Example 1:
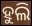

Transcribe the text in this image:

ହୁଲି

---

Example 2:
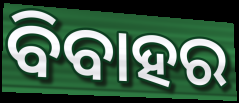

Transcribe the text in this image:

ବିବାହର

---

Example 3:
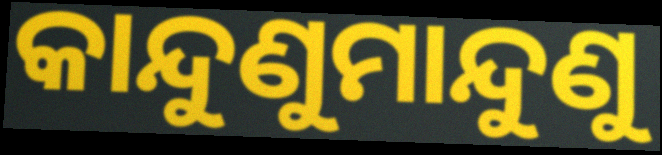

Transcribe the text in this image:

କାନ୍ଦୁଣୁମାନ୍ଦୁଣୁ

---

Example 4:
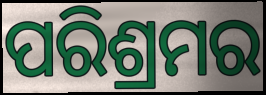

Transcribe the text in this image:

ପରିଶ୍ରମର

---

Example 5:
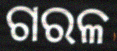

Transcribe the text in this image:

ଗରଳ